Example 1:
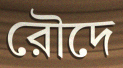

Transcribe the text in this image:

রৌদে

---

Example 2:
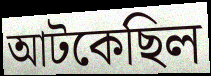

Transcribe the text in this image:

আটকেছিল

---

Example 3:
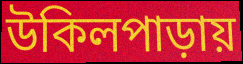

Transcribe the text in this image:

উকিলপাড়ায়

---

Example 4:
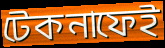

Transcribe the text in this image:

টেকনাফেই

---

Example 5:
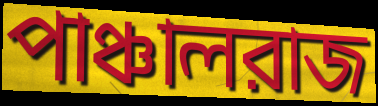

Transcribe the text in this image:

পাঞ্চালরাজ